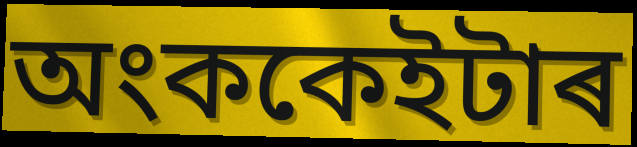
অংককেইটাৰ